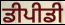
ਡੀਪੀਡੀ